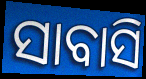
ସାବାସି